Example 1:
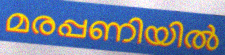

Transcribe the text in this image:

മരപ്പണിയിൽ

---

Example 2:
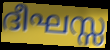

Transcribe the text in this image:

ദീഘസ്സ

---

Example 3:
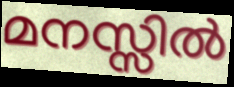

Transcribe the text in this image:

മനസ്സിൽ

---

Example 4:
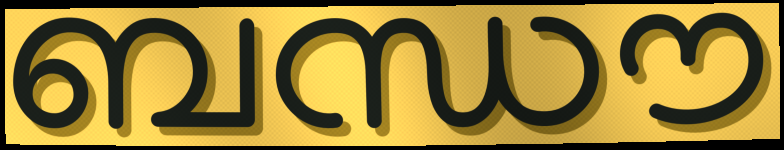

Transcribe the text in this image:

ബന്ധൗ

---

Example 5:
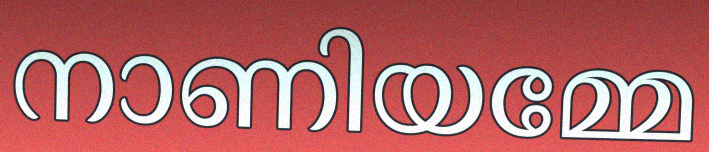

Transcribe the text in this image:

നാണിയമ്മേ